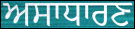
ਅਸਾਧਾਰਣ